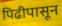
पिढीपासून